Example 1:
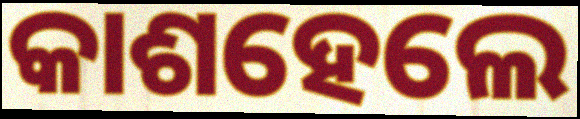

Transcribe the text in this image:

କାଶହେଲେ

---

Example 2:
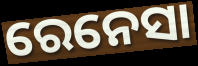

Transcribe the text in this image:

ରେନେସା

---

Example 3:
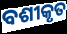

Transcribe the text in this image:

ବଶୀକୃତ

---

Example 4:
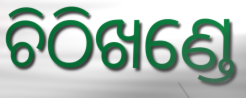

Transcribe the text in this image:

ଚିଠିଖଣ୍ଡେ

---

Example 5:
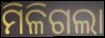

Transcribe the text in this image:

ମିଳିଗଲା